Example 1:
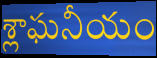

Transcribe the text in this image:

శ్లాఘనీయం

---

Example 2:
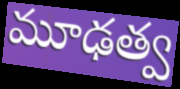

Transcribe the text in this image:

మూఢత్వ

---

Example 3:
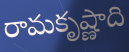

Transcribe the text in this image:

రామకృష్ణాది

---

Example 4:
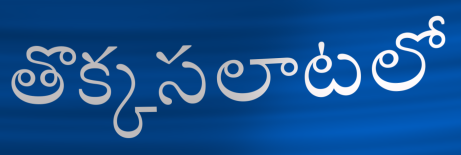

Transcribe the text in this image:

తొక్కసలాటలో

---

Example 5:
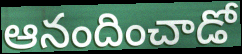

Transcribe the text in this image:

ఆనందించాడో